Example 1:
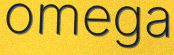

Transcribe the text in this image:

omega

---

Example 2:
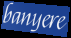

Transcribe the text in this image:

banyere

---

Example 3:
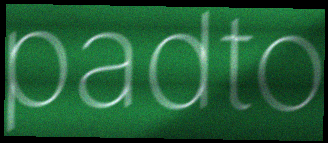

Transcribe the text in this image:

padto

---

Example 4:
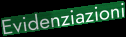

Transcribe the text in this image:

Evidenziazioni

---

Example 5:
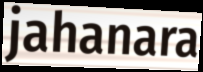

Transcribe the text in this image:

jahanara